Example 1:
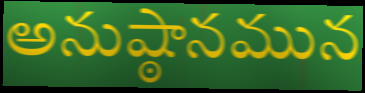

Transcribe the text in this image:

అనుష్ఠానమున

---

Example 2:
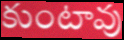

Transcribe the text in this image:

కుంటావు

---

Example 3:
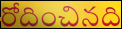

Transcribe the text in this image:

రోదించినది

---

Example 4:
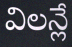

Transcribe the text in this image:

విలన్లే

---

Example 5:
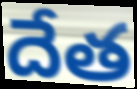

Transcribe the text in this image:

దేత